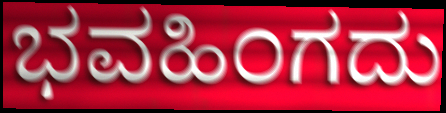
ಭವಹಿಂಗದು